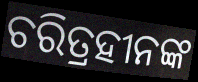
ଚରିତ୍ରହୀନଙ୍କ